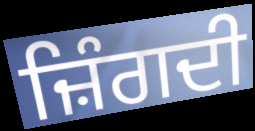
ਜ਼ਿੰਗਦੀ